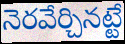
నెరవేర్చినట్టే